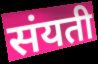
संयती